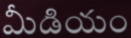
మీడియం